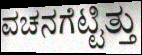
ವಚನಗೆಟ್ಟಿತ್ತು